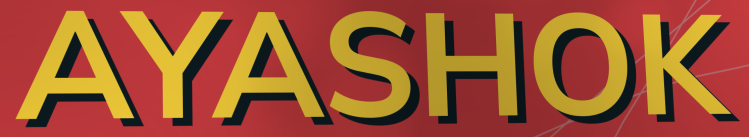
AYASHOK